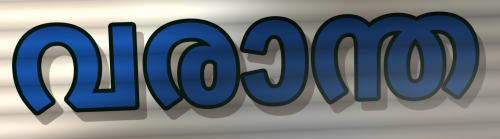
വരാന്ത